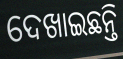
ଦେଖାଇଛନ୍ତି